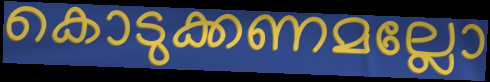
കൊടുക്കണമല്ലോ